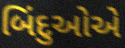
બિંદુઓએ